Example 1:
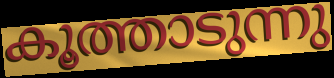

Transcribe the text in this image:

കൂത്താടുന്നു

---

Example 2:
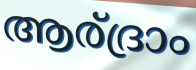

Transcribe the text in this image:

ആര്ദ്രാം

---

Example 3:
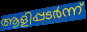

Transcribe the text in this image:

ആളിപ്പടർന്ന്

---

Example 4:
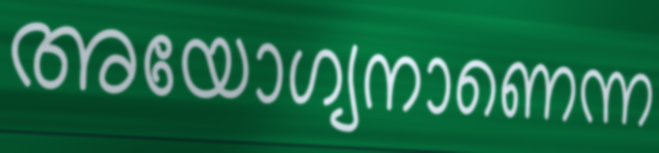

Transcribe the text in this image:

അയോഗ്യനാണെന്ന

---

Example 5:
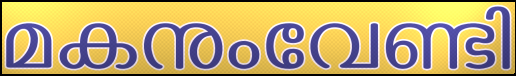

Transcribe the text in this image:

മകനുംവേണ്ടി